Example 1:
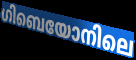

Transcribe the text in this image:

ഗിബെയോനിലെ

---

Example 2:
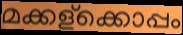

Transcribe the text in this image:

മക്കള്ക്കൊപ്പം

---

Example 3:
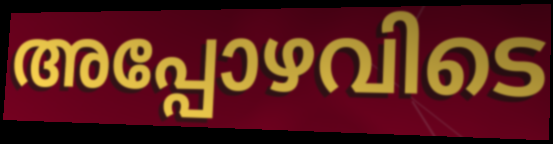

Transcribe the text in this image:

അപ്പോഴവിടെ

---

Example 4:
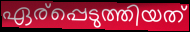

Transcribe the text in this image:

ഏര്പ്പെടുത്തിയത്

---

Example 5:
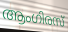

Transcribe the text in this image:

ആംഗിരസ്